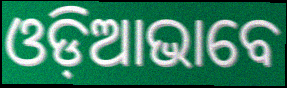
ଓଡ଼ିଆଭାବେ